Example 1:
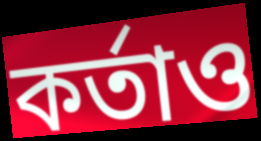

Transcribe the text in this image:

কর্তাও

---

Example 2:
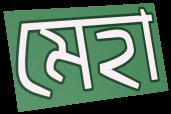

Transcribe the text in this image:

মেহা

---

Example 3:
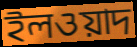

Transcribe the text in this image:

ইলওয়াদ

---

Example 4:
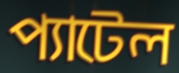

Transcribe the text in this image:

প্যাটেল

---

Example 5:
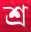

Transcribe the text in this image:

শ্র